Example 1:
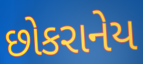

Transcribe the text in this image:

છોકરાનેય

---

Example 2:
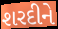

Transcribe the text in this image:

શરદીને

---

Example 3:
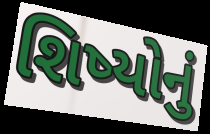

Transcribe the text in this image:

શિષ્યોનું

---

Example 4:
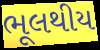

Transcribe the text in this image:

ભૂલથીય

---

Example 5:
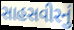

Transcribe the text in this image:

સાહસવીરનું